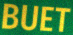
BUET